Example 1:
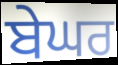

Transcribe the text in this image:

ਬੇਘਰ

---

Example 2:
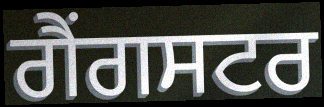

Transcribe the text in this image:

ਗੈਂਗਸਟਰ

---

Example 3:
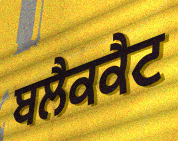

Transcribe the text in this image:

ਬਲੈਕਕੈਟ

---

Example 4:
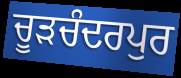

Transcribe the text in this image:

ਚੂੜਚੰਦਰਪੁਰ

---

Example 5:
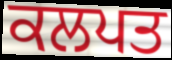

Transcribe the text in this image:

ਕਲਪਤ